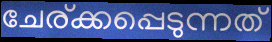
ചേര്ക്കപ്പെടുന്നത്